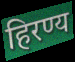
हिरण्य